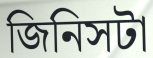
জিনিসটা